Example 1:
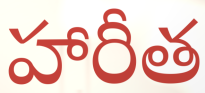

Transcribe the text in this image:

హారీత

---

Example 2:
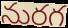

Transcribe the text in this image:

నురగ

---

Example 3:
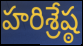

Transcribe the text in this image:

హరిశ్రేష్ఠ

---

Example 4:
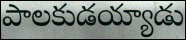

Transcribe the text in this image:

పాలకుడయ్యాడు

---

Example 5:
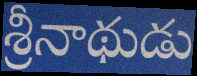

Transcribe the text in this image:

శ్రీనాథుడు